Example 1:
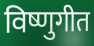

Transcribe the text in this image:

विष्णुगीत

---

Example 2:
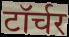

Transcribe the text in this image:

टॉर्चर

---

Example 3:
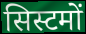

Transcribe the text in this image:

सिस्टमों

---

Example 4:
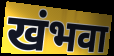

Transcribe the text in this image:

खंभवा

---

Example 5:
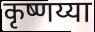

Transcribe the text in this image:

कृष्णय्या